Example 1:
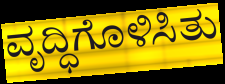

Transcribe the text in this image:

ವೃದ್ಧಿಗೊಳಿಸಿತು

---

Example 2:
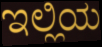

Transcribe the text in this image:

ಇಲ್ಲಿಯ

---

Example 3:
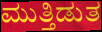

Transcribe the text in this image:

ಮುತ್ತಿಡುತ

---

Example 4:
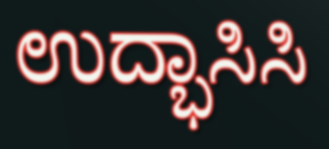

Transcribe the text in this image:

ಉದ್ಭಾಸಿಸಿ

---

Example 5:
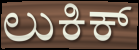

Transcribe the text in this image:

ಲುಕಿಕ್